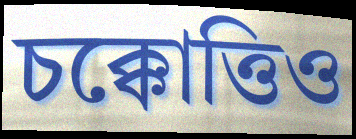
চক্কোত্তিও